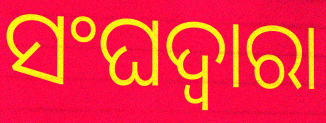
ସଂଘଦ୍ୱାରା